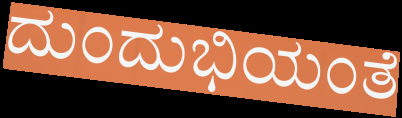
ದುಂದುಭಿಯಂತೆ